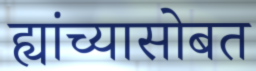
ह्यांच्यासोबत